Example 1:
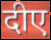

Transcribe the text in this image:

दीए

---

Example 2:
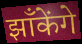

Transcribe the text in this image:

झाँकेंगे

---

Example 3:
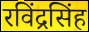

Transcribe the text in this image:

रविंद्रसिंह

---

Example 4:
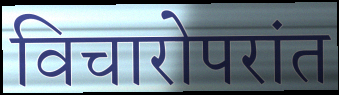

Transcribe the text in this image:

विचारोपरांत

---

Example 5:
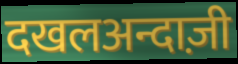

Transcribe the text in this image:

दखलअन्दाज़ी